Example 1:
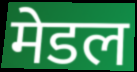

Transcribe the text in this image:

मेडल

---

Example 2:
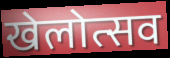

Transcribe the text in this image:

खेलोत्सव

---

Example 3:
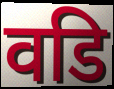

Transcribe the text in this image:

वडि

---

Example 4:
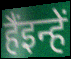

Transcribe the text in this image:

हैंइन्हें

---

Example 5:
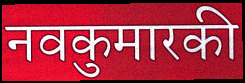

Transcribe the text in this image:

नवकुमारकी